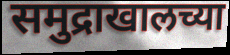
समुद्राखालच्या